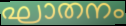
ഘാതനം